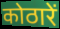
कोठारें